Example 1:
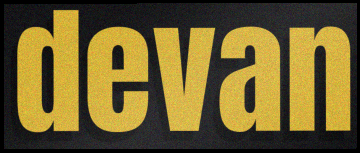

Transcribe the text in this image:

devan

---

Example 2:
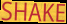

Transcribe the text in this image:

SHAKE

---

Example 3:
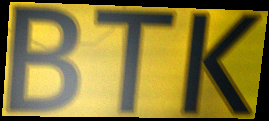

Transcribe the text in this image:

BTK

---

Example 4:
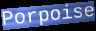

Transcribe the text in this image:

Porpoise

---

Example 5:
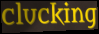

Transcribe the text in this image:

clucking